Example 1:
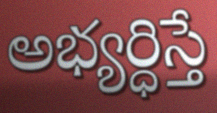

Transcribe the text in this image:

అభ్యర్ధిస్తే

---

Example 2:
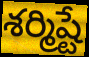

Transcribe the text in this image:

శర్మిష్టే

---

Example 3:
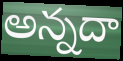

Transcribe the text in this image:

అన్నదా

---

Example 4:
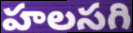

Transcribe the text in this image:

హలసగి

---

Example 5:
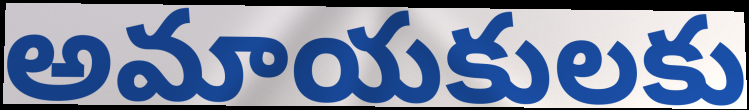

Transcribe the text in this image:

అమాయకులకు